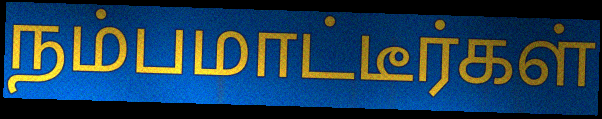
நம்பமாட்டீர்கள்